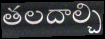
తలదాల్చి